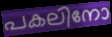
പകലിനോ